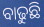
ବାଢୁଛି